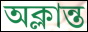
অক্লান্ত